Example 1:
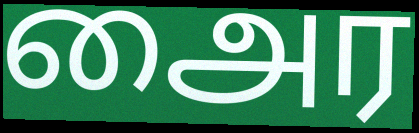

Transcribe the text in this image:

அைர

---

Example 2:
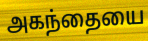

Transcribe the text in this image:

அகந்தையை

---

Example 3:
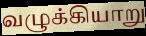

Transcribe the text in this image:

வழுக்கியாறு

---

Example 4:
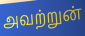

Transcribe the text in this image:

அவற்றுன்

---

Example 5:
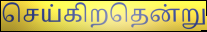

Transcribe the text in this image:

செய்கிறதென்று